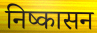
निष्कासन